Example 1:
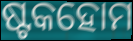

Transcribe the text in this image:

ଷ୍ଟକହୋମ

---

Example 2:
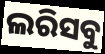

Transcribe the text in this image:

ଲରିସବୁ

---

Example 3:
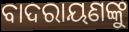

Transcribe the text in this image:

ବାଦରାୟଣଙ୍କୁ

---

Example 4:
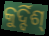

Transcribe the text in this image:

କୁର୍ଦ୍ଦିଶ୍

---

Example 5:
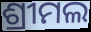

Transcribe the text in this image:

ଶ୍ରୀମଲ